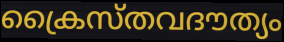
ക്രൈസ്തവദൗത്യം